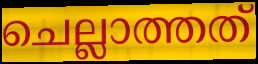
ചെല്ലാത്തത്